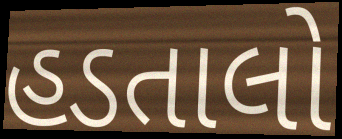
હડતાલો